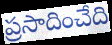
ప్రసాదించేది